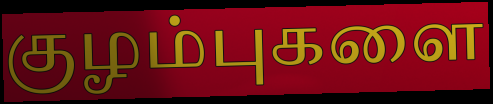
குழம்புகளை